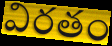
విరతం